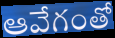
ఆవేగంతో